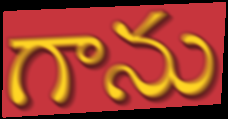
గాను